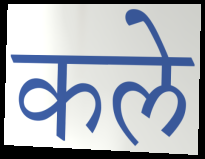
कले